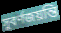
সুবর্ণজয়ন্তি